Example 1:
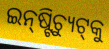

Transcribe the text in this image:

ଇନ୍‌ଷ୍ଟିଚ୍ୟୁଟ୍‌କୁ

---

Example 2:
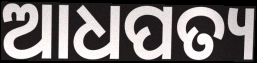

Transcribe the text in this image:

ଆଧପତ୍ୟ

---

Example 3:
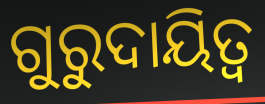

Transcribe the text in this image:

ଗୁରୁଦାୟିତ୍ୱ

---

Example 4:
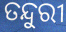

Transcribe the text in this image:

ତନ୍ଦୁରୀ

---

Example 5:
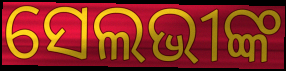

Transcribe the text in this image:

ସେଲଭୀଙ୍କ